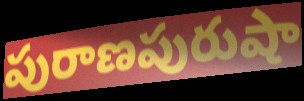
పురాణపురుషా